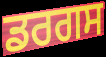
ਡਰਗਸ